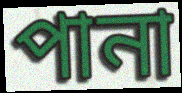
পানা